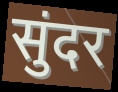
सुंदर